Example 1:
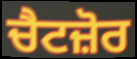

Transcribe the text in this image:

ਚੈਟਜ਼ੋਰ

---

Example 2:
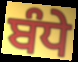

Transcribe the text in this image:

ਬੰਧੇ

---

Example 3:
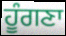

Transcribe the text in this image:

ਹੂੰਗਣਾ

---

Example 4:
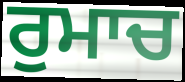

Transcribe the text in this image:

ਰੁਮਾਚ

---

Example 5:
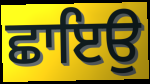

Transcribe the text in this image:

ਛਾਇਉ